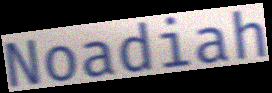
Noadiah